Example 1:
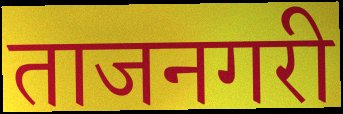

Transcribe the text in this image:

ताजनगरी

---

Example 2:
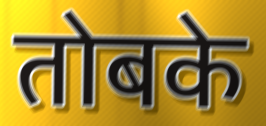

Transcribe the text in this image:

तोबके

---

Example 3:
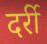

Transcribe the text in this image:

दर्री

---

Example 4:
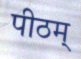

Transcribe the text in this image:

पीठम्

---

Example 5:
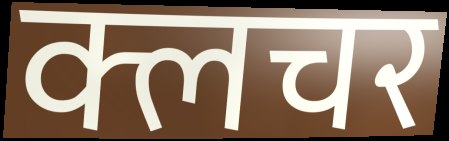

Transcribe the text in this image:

क्लचर